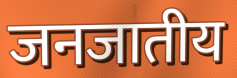
जनजातीय